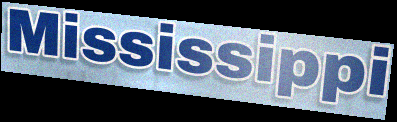
Mississippi